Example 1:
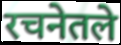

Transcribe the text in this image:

रचनेतले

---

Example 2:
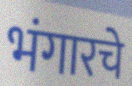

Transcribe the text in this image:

भंगारचे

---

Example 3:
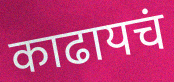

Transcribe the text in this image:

काढायचं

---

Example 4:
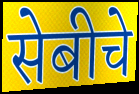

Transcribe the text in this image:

सेबीचे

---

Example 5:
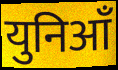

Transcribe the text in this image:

युनिआँ